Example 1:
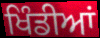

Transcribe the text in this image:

ਖਿੰਡੀਆਂ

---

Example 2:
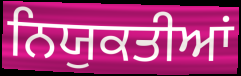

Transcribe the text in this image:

ਨਿਯੁਕਤੀਆਂ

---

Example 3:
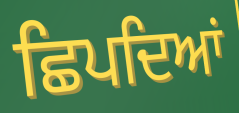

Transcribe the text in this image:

ਛਿਪਦਿਆਂ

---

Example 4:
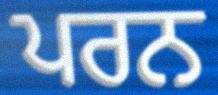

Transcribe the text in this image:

ਪਰਨ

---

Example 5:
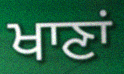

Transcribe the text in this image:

ਖਾਣਾਂ